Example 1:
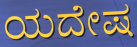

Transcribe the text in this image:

ಯದೇಷ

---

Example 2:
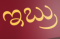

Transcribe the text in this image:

ಇಬ್ರು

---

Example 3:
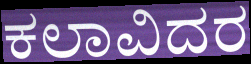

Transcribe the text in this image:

ಕಲಾವಿದರ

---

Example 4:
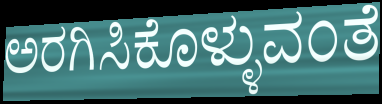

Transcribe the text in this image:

ಅರಗಿಸಿಕೊಳ್ಳುವಂತೆ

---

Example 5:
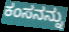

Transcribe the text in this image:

ಕಂಸನನ್ನು